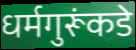
धर्मगुरूंकडे